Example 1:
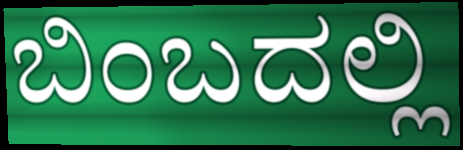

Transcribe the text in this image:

ಬಿಂಬದಲ್ಲಿ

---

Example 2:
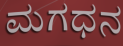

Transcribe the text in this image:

ಮಗಧನ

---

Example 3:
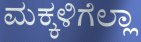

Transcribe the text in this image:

ಮಕ್ಕಳಿಗೆಲ್ಲಾ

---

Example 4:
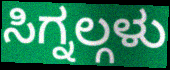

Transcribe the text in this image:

ಸಿಗ್ನಲ್ಗಳು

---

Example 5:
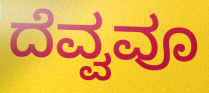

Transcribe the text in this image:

ದೆವ್ವವೂ